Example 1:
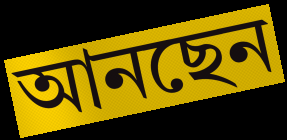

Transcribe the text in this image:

আনছেন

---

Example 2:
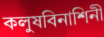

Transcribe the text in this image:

কলুষবিনাশিনী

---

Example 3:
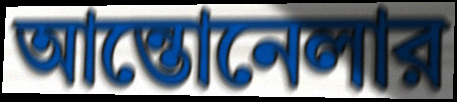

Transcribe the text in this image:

আন্তোনেলার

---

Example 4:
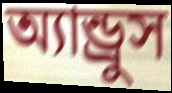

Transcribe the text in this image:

অ্যান্ড্রুস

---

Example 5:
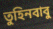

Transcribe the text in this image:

তুহিনবাবু